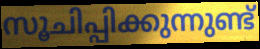
സൂചിപ്പിക്കുന്നുണ്ട്